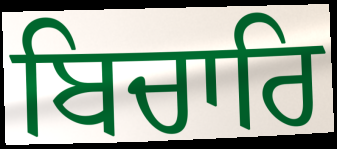
ਬਿਚਾਰਿ